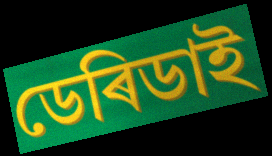
ডেৰিডাই